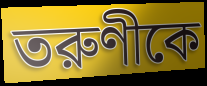
তরুণীকে